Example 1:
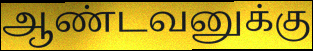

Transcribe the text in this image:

ஆண்டவனுக்கு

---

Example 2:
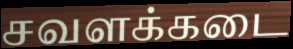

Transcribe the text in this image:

சவளக்கடை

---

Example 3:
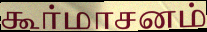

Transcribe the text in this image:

கூர்மாசனம்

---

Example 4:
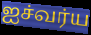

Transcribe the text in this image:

ஐச்வர்ய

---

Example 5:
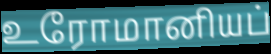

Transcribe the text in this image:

உரோமானியப்